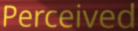
Perceived